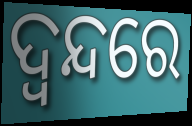
ଦ୍ଵନ୍ଦରେ